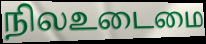
நிலஉடைமை